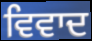
ਵਿਵਾਦ